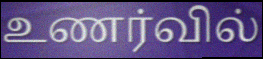
உணர்வில்